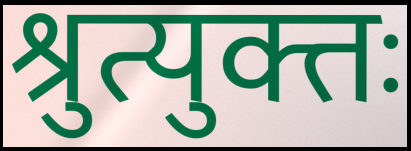
श्रुत्युक्तः